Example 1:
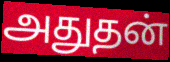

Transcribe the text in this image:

அதுதன்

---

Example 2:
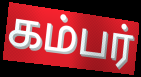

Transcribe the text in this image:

கம்பர்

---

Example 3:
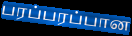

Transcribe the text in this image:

பரப்பரப்பான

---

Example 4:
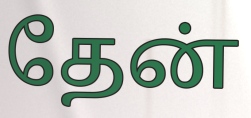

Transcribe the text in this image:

தேன்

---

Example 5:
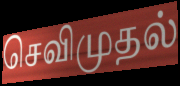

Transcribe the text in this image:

செவிமுதல்